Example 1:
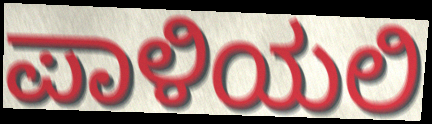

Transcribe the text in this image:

ಪಾಳಿಯಲಿ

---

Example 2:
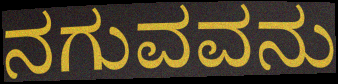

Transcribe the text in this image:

ನಗುವವನು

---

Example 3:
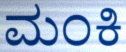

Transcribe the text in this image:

ಮಂಕಿ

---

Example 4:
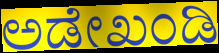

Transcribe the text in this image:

ಅಡೇಖಂಡಿ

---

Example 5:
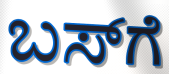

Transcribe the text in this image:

ಬಸ್‍ಗೆ